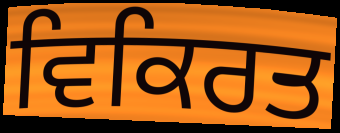
ਵਿਕਿਰਤ